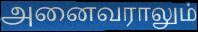
அனைவராலும்